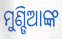
ମୁଣ୍ଡିଆଙ୍କ